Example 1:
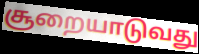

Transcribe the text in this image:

சூறையாடுவது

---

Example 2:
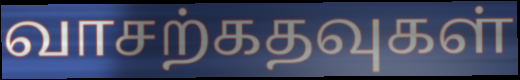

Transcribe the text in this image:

வாசற்கதவுகள்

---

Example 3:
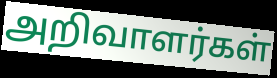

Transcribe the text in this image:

அறிவாளர்கள்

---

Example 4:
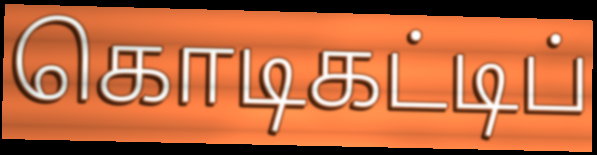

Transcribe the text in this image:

கொடிகட்டிப்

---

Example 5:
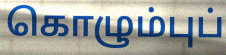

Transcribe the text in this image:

கொழும்புப்